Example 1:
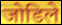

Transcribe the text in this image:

जोडिले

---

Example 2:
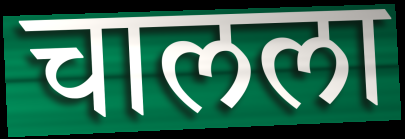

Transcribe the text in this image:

चालला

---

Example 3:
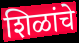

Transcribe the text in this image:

शिळांचे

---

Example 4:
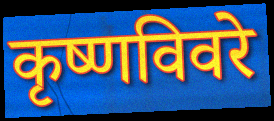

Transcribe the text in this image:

कृष्णविवरे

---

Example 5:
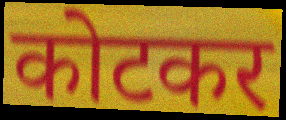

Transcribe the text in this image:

कोटकर